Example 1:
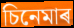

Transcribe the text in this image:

চিনেমাৰ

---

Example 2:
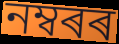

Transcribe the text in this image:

নম্বৰৰ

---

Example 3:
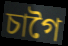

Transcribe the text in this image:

চাগৈ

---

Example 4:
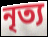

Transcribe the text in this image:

নৃত্য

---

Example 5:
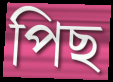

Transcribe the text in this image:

পিছ